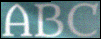
ABC